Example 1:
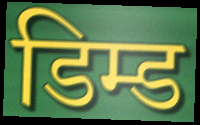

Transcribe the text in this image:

डिम्ड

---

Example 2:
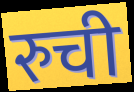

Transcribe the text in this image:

रुची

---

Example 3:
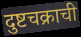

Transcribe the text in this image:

दुष्टचक्राची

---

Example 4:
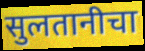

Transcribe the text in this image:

सुलतानीचा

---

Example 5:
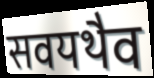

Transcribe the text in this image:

सवयथैव